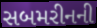
સબમરીનની